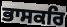
ਭਾਸਕਰਿ